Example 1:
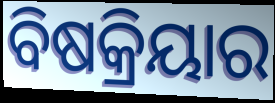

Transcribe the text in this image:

ବିଷକ୍ରିୟାର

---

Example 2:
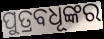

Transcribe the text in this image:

ପୁତ୍ରବଧୂଙ୍କର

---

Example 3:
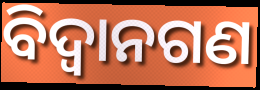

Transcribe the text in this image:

ବିଦ୍ଵାନଗଣ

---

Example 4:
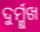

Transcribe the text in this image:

ଦୁର୍ମ୍ମୁଖ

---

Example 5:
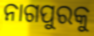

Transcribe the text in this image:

ନାଗପୁରକୁ